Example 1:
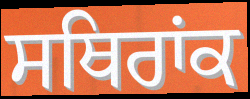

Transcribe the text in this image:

ਸਥਿਰਾਂਕ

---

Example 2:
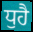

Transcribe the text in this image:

ਧੁਹੈ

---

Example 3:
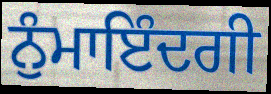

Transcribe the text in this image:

ਨੁੰਮਾਇੰਦਗੀ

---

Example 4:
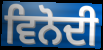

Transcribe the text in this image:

ਵਿਨੋਦੀ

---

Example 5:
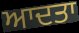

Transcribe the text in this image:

ਆਦਤਾ